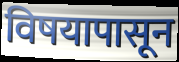
विषयापासून